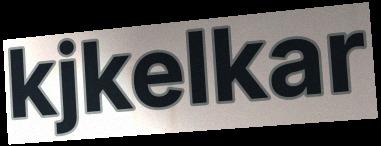
kjkelkar